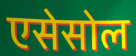
एसेसोल